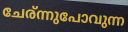
ചേര്ന്നുപോവുന്ന